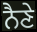
ਨੈਣੇ